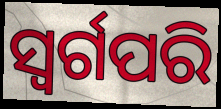
ସ୍ୱର୍ଗପରି